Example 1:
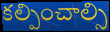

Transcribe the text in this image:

కల్పించాల్సి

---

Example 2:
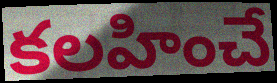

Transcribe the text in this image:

కలహించే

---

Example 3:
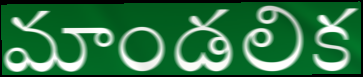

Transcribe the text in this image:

మాండలిక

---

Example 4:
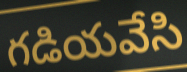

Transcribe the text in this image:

గడియవేసి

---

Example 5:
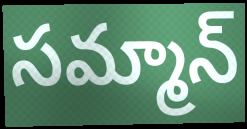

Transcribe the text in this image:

సమ్మాన్